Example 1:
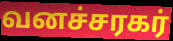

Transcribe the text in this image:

வனச்சரகர்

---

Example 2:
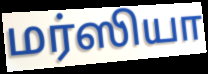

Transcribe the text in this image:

மர்ஸியா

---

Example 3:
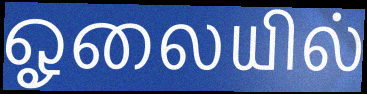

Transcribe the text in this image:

ஓலையில்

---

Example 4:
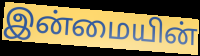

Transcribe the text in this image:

இன்மையின்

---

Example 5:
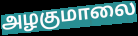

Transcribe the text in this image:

அழகுமாலை